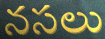
నసలు